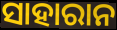
ସାହାରାନ